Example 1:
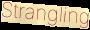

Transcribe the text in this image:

Strangling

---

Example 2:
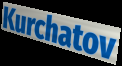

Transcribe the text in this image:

Kurchatov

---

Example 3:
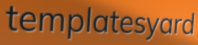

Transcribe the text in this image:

templatesyard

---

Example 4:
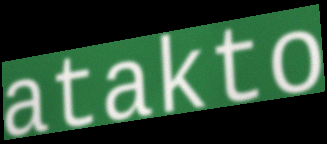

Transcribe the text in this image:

atakto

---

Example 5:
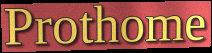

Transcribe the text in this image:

Prothome